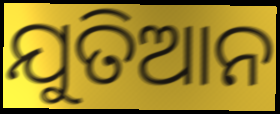
ଯୁତିଆନ